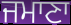
ਜਮਾਣਾ